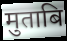
मुताबि